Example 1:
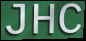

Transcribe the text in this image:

JHC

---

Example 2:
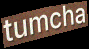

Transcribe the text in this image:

tumcha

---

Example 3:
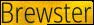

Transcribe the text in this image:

Brewster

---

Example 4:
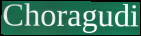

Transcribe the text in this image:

Choragudi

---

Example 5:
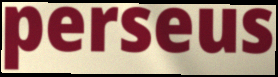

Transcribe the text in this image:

perseus